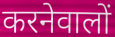
करनेवालों